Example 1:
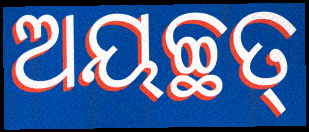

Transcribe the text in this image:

ଅୟଚ୍ଛତ୍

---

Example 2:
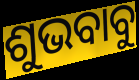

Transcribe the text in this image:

ଶୁଭବାବୁ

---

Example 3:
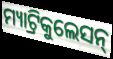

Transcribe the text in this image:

ମ୍ୟାଟ୍ରିକୁଲେସନ୍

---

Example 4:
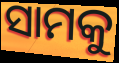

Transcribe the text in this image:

ସାମକୁ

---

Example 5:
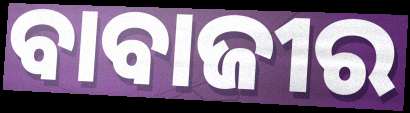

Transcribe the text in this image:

ବାବାଜୀର